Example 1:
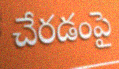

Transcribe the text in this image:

చేరడంపై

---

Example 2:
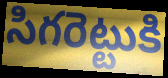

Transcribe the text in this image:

సిగరెట్టుకి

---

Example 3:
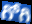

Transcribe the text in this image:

గోగి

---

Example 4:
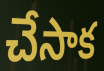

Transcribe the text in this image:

చేసాక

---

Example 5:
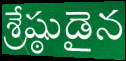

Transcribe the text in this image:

శ్రేష్ఠుడైన